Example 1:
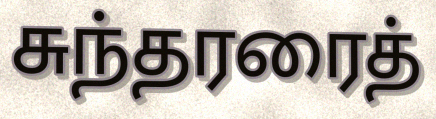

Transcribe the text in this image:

சுந்தரரைத்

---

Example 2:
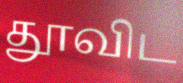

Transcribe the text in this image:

தூவிட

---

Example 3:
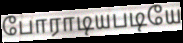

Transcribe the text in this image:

போராடியபடியே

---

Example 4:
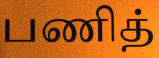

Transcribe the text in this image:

பணித்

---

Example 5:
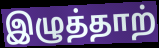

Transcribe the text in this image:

இழுத்தாற்